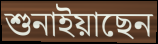
শুনাইয়াছেন